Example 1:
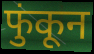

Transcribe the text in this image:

फुंकून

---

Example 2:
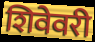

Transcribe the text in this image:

शिवेवरी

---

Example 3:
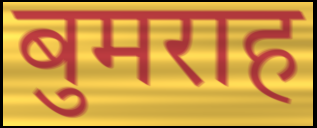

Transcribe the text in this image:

बुमराह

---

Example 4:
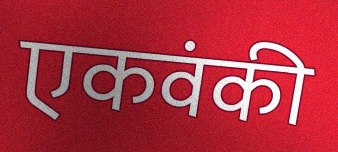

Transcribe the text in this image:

एकवंकी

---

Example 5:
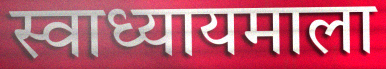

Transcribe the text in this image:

स्वाध्यायमाला